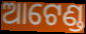
ଆଟେଣ୍ଡ